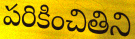
పరికించితిని